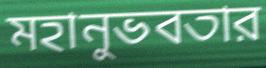
মহানুভবতার